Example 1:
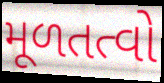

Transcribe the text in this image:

મૂળતત્વો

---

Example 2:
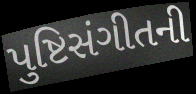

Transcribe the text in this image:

પુષ્ટિસંગીતની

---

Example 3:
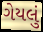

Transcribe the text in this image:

ગેયલું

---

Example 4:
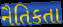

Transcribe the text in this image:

નૈતિકતા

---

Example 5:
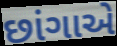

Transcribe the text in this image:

છાંગાએ